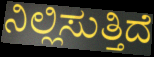
ನಿಲ್ಲಿಸುತ್ತಿದೆ